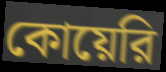
কোয়েরি